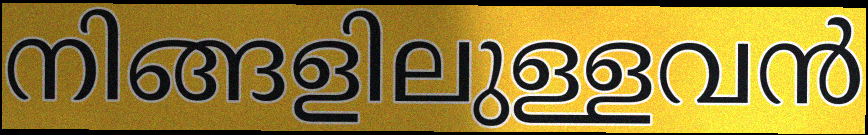
നിങ്ങളിലുള്ളവൻ